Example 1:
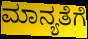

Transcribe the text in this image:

ಮಾನ್ಯತೆಗೆ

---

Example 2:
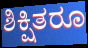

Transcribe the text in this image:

ಶಿಕ್ಷಿತರೂ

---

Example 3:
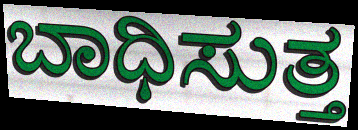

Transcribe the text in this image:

ಬಾಧಿಸುತ್ತ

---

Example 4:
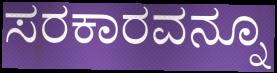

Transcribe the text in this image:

ಸರಕಾರವನ್ನೂ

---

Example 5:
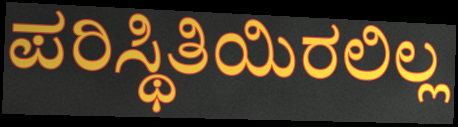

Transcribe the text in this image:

ಪರಿಸ್ಥಿತಿಯಿರಲಿಲ್ಲ